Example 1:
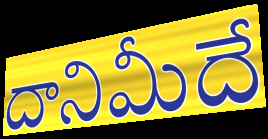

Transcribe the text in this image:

దానిమీదే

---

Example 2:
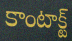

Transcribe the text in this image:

కాంటాక్ట్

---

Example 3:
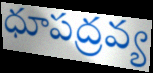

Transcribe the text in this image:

ధూపద్రవ్య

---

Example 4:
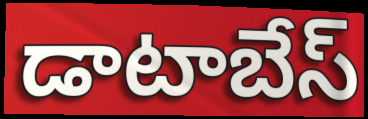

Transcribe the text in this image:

డాటాబేస్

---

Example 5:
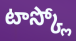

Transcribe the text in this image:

టాస్క్లో